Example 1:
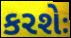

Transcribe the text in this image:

કરશેઃ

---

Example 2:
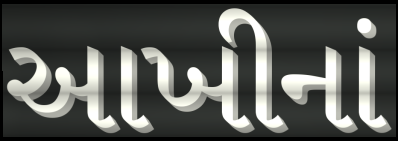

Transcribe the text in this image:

આખીનાં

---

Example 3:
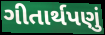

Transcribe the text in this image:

ગીતાર્થપણું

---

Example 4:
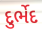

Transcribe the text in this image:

દુર્ભેદ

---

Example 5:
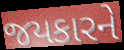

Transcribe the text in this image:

જયકારને